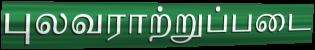
புலவராற்றுப்படை